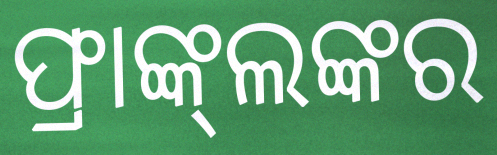
ଫ୍ରାଙ୍କ୍‌ଲଙ୍କର